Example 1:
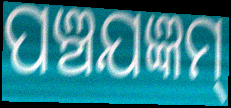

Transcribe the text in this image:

ପଞ୍ଚଯଜ୍ଞମ୍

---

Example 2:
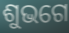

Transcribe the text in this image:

ଶୁଭଗେ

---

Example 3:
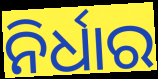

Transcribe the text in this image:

ନିର୍ଧାର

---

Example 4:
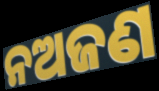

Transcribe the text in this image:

ନଅଜଣ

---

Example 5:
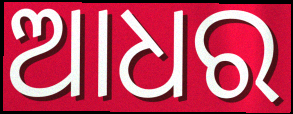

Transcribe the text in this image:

ଆଧର